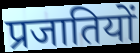
प्रजातियों